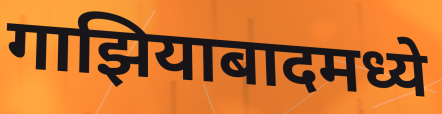
गाझियाबादमध्ये